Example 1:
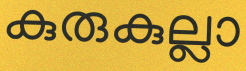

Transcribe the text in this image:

കുരുകുല്ലാ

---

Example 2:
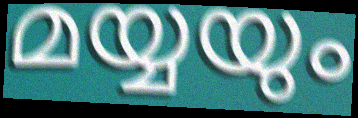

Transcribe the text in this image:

മയ്യയും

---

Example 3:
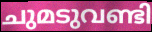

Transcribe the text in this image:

ചുമടുവണ്ടി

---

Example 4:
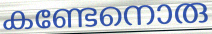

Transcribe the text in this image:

കണ്ടേനൊരു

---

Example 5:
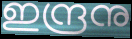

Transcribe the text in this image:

ഇന്ദ്രനു